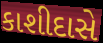
કાશીદાસે